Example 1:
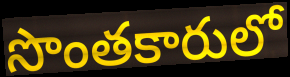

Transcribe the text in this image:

సొంతకారులో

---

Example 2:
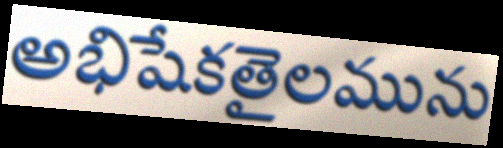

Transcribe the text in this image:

అభిషేకతైలమును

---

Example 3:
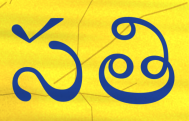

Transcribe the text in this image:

సతి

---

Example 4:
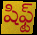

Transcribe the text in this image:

షిఫ్ట్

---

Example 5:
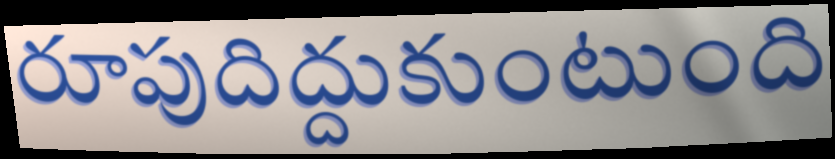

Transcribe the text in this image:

రూపుదిద్దుకుంటుంది